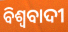
ବିଶ୍ଵବାଦୀ